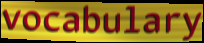
vocabulary